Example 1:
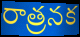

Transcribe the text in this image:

రాత్రనక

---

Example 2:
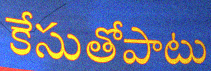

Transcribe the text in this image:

కేసుతోపాటు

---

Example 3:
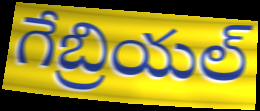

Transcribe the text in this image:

గేబ్రియల్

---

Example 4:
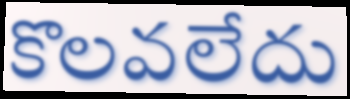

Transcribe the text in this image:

కొలవలేదు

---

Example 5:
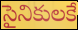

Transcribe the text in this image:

సైనికులకే